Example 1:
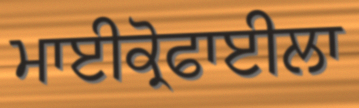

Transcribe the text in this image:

ਮਾਈਕ੍ਰੋਫਾਈਲਾ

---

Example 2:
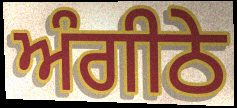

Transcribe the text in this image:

ਅੰਗੀਠੇ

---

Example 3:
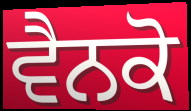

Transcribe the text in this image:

ਵੈਨਕੋ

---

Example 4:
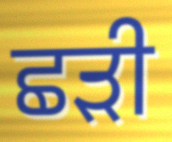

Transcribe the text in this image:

ਛੜੀ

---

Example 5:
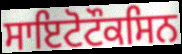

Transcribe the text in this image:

ਸਾਇਟੋਟੌਕਸਿਨ